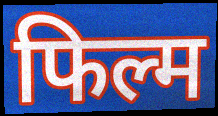
फिल्म